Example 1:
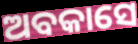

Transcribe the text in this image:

ଅବକାସେ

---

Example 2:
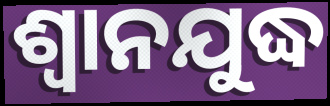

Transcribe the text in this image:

ଶ୍ଵାନଯୁଦ୍ଧ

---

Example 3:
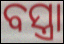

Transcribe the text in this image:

ବସ୍ତ୍ରା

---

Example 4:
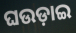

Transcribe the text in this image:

ଘଉଡ଼ାଇ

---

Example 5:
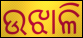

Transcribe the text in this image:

ଉଝାଳି